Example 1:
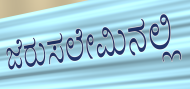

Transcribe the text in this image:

ಜೆರುಸಲೇಮಿನಲ್ಲಿ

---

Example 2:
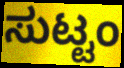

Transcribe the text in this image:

ಸುಟ್ಟಂ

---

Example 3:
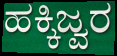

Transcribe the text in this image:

ಹಕ್ಕಿಜ್ವರ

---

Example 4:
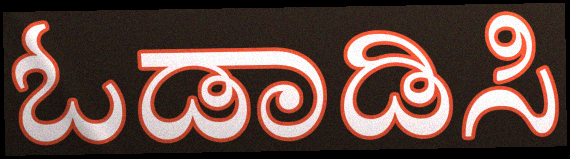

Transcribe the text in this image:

ಓಡಾಡಿಸಿ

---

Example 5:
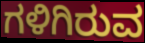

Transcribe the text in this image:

ಗಳಿಗಿರುವ